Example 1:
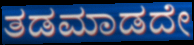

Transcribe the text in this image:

ತಡಮಾಡದೇ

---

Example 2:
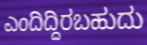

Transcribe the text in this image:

ಎಂದಿದ್ದಿರಬಹುದು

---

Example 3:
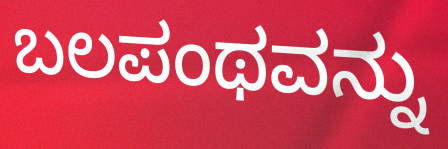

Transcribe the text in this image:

ಬಲಪಂಥವನ್ನು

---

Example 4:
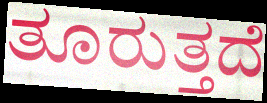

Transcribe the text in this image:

ತೂರುತ್ತದೆ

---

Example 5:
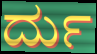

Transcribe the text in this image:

ರ್ದು